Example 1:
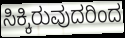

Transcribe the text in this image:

ಸಿಕ್ಕಿರುವುದರಿಂದ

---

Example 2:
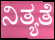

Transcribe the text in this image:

ನಿತ್ಯತೆ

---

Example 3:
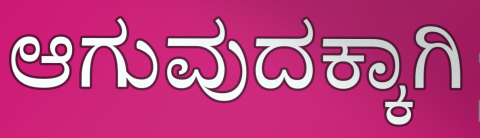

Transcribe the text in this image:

ಆಗುವುದಕ್ಕಾಗಿ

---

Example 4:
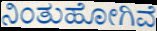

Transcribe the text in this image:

ನಿಂತುಹೋಗಿವೆ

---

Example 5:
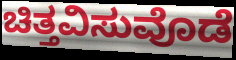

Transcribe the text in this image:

ಚಿತ್ತವಿಸುವೊಡೆ